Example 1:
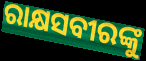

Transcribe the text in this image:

ରାକ୍ଷସବୀରଙ୍କୁ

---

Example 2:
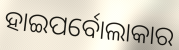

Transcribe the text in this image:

ହାଇପର୍ବୋଲାକାର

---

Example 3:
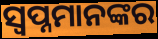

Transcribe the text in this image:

ସ୍ବପ୍ନମାନଙ୍କର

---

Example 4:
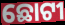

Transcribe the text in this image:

ଛୋଟୀ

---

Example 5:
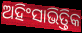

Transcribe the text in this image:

ଅହିଂସାଭିତ୍ତିକ